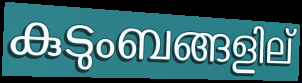
കുടുംബങ്ങളില്